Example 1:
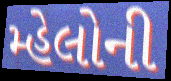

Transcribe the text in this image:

મ્હેલોની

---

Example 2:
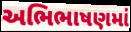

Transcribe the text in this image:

અભિભાષણમાં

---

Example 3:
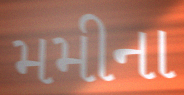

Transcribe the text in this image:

મમીના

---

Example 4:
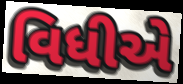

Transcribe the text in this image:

વિધીએ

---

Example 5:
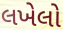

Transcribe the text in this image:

લખેલો